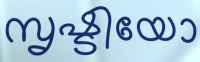
സൃഷ്ടിയോ